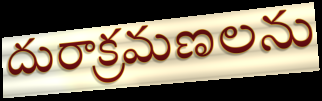
దురాక్రమణలను